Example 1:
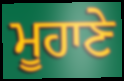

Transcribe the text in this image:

ਮੂਹਾਣੇ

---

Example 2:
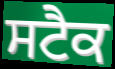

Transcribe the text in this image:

ਸਟੈਕ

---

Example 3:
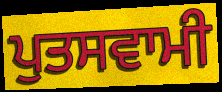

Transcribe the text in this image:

ਪੁਤਸਵਾਮੀ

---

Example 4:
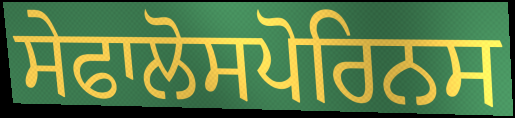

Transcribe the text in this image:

ਸੇਫਾਲੋਸਪੋਰਿਨਸ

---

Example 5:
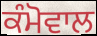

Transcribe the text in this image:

ਕੰਮੋਵਾਲ